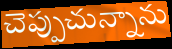
చెప్పుచున్నాను